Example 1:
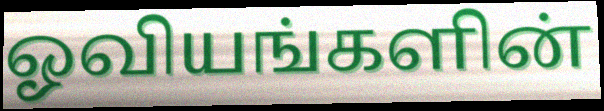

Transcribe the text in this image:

ஓவியங்களின்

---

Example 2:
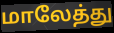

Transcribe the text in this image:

மாலேத்து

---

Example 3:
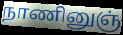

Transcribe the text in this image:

நாணினுஞ்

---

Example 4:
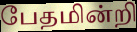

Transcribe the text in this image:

பேதமின்றி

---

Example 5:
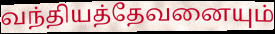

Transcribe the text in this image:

வந்தியத்தேவனையும்